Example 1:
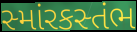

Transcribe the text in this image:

સ્માંરકસ્તંભ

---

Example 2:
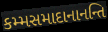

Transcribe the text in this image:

કમ્મસમાદાનાનન્તિ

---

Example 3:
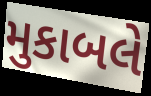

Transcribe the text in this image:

મુકાબલે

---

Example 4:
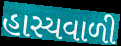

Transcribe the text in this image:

હાસ્યવાળી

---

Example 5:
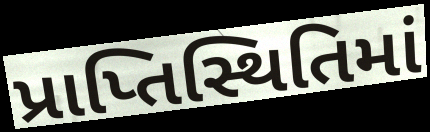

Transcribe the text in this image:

પ્રાપ્તિસ્થિતિમાં